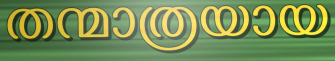
തന്മാത്രയായ